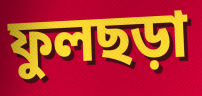
ফুলছড়া